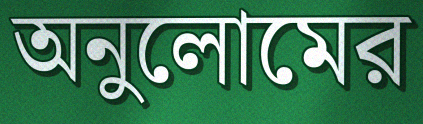
অনুলোমের